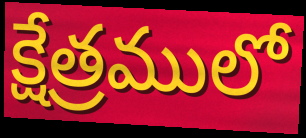
క్షేత్రములో